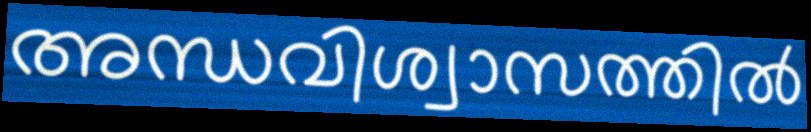
അന്ധവിശ്വാസത്തിൽ